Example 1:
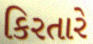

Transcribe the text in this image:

કિરતારે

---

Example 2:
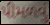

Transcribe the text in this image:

પીમળવું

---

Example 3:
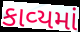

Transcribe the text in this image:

કાવ્‍યમાં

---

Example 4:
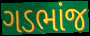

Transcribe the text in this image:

ગડભાંજ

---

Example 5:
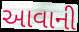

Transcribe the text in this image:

આવાની